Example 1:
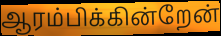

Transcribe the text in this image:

ஆரம்பிக்கின்றேன்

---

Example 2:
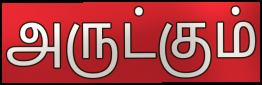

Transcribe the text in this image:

அருட்கும்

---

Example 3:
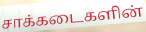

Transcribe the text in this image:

சாக்கடைகளின்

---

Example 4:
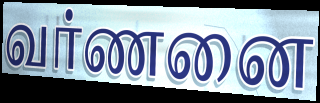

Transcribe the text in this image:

வர்ணனை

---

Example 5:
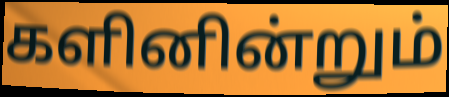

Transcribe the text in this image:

களினின்றும்